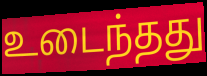
உடைந்தது